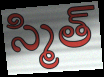
స్మిత్